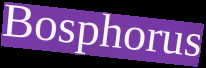
Bosphorus